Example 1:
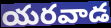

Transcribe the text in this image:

యరవాడ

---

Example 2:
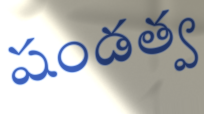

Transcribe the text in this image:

షండత్వ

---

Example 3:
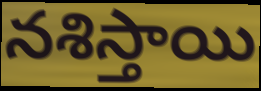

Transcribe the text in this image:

నశిస్తాయి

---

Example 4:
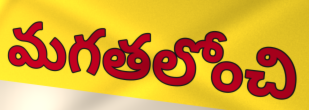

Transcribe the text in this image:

మగతలోంచి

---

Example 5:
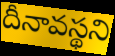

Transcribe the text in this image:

దీనావస్థని